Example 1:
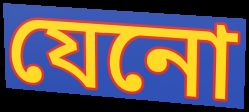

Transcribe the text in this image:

যেনো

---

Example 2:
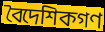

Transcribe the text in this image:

বৈদেশিকগণ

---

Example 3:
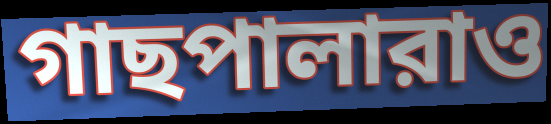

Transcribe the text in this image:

গাছপালারাও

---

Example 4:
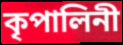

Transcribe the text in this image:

কৃপালিনী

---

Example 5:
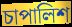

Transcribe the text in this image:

চাপালিশ